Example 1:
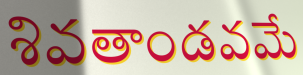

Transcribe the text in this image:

శివతాండవమే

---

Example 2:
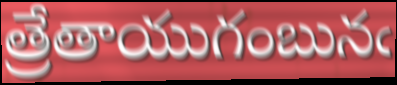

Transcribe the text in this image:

త్రేతాయుగంబునఁ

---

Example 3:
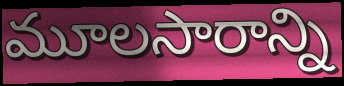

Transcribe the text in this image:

మూలసారాన్ని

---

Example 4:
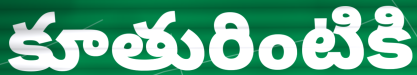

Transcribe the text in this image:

కూతురింటికి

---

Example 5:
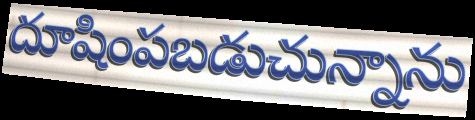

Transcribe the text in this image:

దూషింపబడుచున్నాను